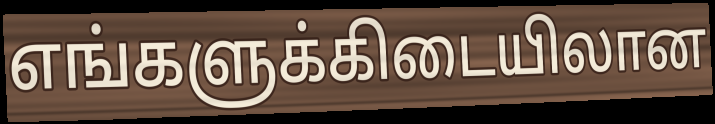
எங்களுக்கிடையிலான